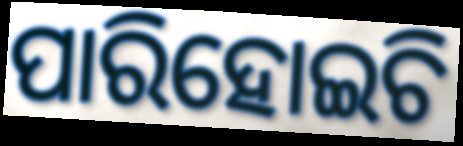
ପାରିହୋଇଚି